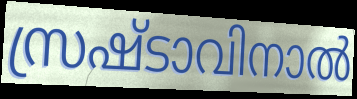
സ്രഷ്ടാവിനാൽ